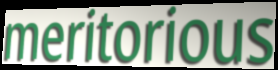
meritorious